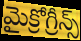
మైక్రోగ్రీన్స్